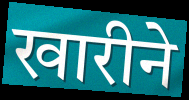
खारीने